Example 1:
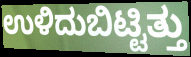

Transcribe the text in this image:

ಉಳಿದುಬಿಟ್ಟಿತ್ತು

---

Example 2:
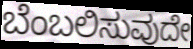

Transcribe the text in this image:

ಬೆಂಬಲಿಸುವುದೇ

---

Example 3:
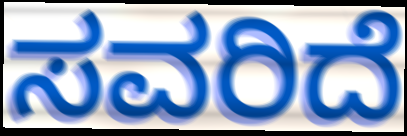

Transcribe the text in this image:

ಸವರಿದೆ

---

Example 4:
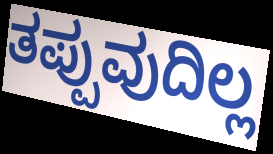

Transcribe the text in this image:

ತಪ್ಪುವುದಿಲ್ಲ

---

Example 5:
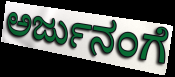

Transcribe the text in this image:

ಅರ್ಜುನಂಗೆ